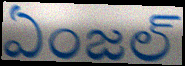
ఏంజల్